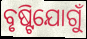
ବୃଷ୍ଟିଯୋଗୁଁ